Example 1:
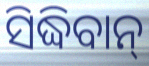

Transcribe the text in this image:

ସିଦ୍ଧିବାନ୍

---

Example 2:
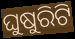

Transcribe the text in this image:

ଘୁଷୁରିଟି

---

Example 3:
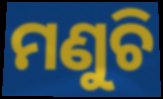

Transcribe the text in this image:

ମଣୁଚି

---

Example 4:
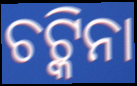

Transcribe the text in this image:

ଚଟ୍କିନା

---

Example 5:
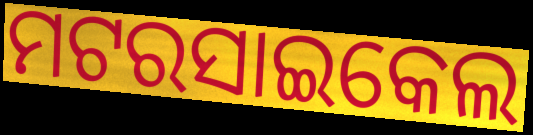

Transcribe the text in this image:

ମଟରସାଇକେଲ